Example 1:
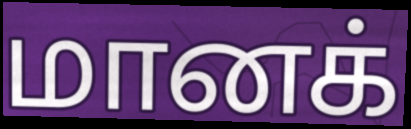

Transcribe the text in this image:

மானக்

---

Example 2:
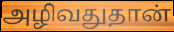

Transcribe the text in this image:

அழிவதுதான்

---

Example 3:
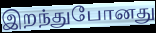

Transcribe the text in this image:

இறந்துபோனது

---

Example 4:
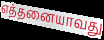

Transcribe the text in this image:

எத்தனையாவது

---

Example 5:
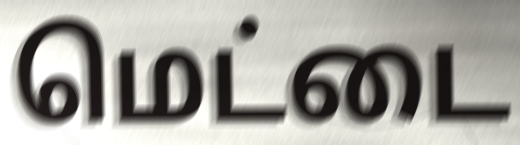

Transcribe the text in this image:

மெட்டை